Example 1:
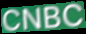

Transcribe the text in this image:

CNBC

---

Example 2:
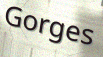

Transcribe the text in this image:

Gorges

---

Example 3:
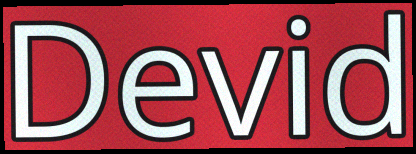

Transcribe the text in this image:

Devid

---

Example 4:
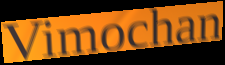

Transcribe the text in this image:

Vimochan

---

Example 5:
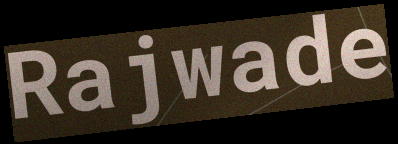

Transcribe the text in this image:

Rajwade